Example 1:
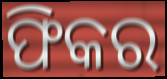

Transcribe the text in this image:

ଫିକର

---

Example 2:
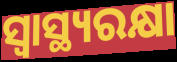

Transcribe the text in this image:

ସ୍ବାସ୍ଥ୍ୟରକ୍ଷା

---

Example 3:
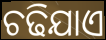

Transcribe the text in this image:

ଚଢିଯାଏ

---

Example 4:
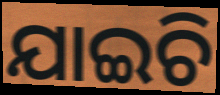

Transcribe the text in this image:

ଯାଇଚି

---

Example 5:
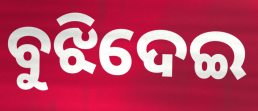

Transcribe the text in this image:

ବୁଝିଦେଇ